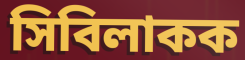
সিবিলাকক